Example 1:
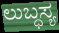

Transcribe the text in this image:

ಲುಬ್ಧಸ್ಯ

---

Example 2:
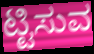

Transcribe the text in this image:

ಟ್ಟಿಸುವ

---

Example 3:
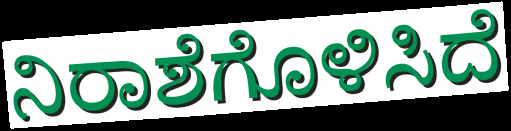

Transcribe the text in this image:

ನಿರಾಶೆಗೊಳಿಸಿದೆ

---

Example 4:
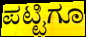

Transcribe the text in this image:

ಪಟ್ಟಿಗೂ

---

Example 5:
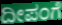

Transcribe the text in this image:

ದೀಪಂಗೆ